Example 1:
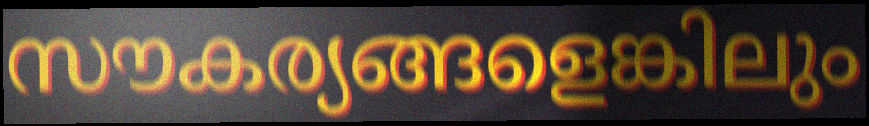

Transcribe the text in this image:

സൗകര്യങ്ങളെങ്കിലും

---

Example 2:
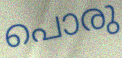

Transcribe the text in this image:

പൊരു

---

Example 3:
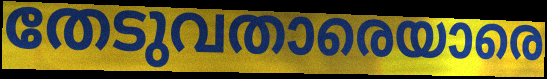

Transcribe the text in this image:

തേടുവതാരെയാരെ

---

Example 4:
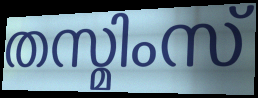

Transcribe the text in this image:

തസ്മിംസ്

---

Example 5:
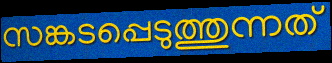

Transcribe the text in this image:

സങ്കടപ്പെടുത്തുന്നത്